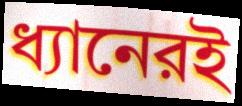
ধ্যানেরই